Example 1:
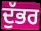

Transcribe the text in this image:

ਦੁੱਭਰ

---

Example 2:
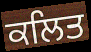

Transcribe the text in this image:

ਕਲਿਤ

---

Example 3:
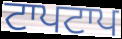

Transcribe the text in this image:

ਟਾਪਟਾਪ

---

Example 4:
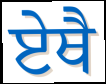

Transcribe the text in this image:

ਏਥੈ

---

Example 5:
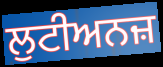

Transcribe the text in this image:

ਲੁਟੀਅਨਜ਼